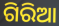
ଗିରିଆ